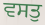
ਵਸਤੁ